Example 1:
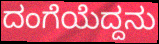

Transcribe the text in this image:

ದಂಗೆಯೆದ್ದನು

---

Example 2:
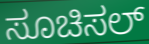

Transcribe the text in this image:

ಸೂಚಿಸಲ್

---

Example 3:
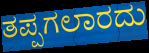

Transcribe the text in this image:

ತಪ್ಪಗಲಾರದು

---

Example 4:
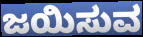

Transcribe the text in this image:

ಜಯಿಸುವ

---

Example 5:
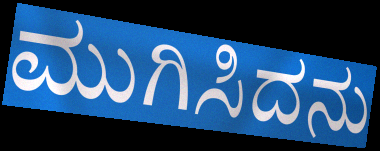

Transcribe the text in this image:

ಮುಗಿಸಿದನು